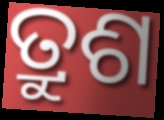
ତ୍ରୁଶ